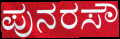
ಪುನರಸೌ